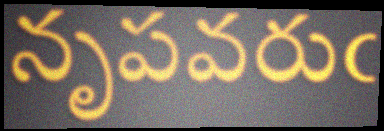
నృపవరుఁ